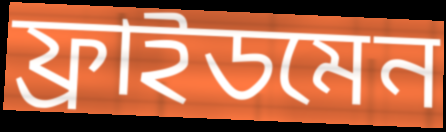
ফ্ৰাইডমেন